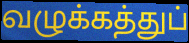
வழுக்கத்துப்